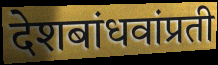
देशबांधवांप्रती